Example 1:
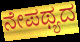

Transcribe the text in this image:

ನೇಪಥ್ಯದ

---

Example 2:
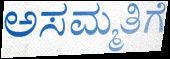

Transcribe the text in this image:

ಅಸಮ್ಮತಿಗೆ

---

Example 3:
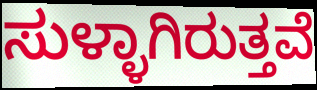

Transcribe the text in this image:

ಸುಳ್ಳಾಗಿರುತ್ತವೆ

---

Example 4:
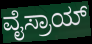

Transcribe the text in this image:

ವೈಸ್ರಾಯ್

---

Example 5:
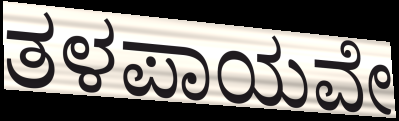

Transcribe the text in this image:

ತಳಪಾಯವೇ